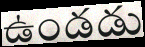
ఉండడు